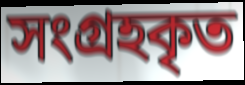
সংগ্রহকৃত